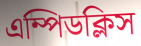
এম্পিডক্লিস